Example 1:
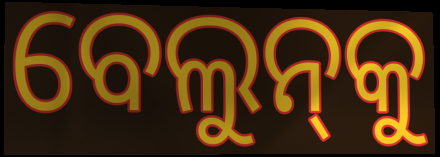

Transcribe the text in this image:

ବେଲୁନ୍‌କୁ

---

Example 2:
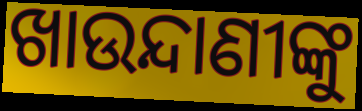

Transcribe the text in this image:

ଖାଉନ୍ଦାଣୀଙ୍କୁ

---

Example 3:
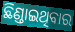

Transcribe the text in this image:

ଛିଣ୍ଡାଇଥିବାର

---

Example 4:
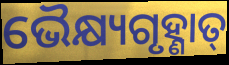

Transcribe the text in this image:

ଭୈକ୍ଷ୍ୟଗୃହ୍ଣାତ୍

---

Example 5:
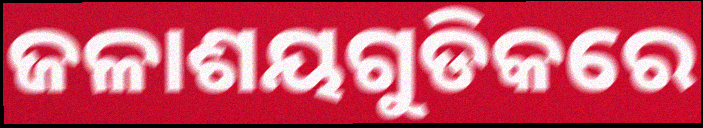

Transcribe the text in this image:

ଜଳାଶୟଗୁଡିକରେ